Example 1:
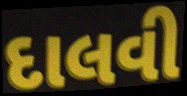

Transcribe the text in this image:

દાલવી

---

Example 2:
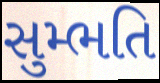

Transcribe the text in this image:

સુમ્ભતિ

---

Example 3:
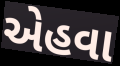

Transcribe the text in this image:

એહવા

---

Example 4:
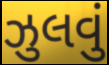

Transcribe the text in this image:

ઝુલવું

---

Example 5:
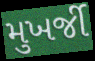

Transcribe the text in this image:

મુખર્જી